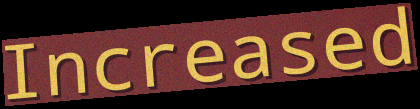
Increased